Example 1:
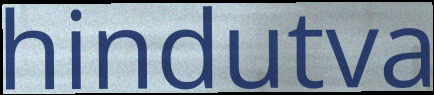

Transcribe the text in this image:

hindutva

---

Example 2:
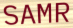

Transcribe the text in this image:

SAMR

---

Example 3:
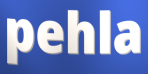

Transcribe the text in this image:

pehla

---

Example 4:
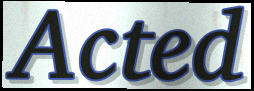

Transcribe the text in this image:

Acted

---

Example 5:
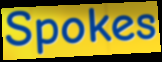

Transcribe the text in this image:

Spokes